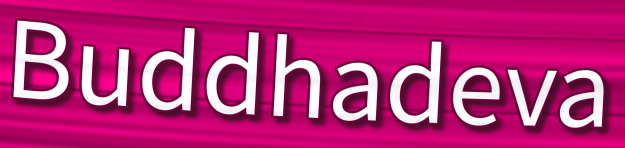
Buddhadeva